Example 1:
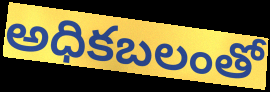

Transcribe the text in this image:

అధికబలంతో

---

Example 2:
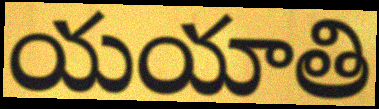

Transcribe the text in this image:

యయాతి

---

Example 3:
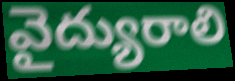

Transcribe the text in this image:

వైద్యురాలి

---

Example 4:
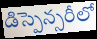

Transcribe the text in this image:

డిస్పెన్సరీలో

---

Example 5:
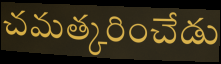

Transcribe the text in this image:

చమత్కరించేడు